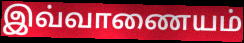
இவ்வாணையம்